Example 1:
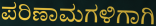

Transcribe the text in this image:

ಪರಿಣಾಮಗಳಿಗಾಗಿ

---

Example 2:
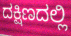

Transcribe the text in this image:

ದಕ್ಷಿಣದಲ್ಲಿ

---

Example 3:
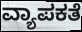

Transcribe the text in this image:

ವ್ಯಾಪಕತೆ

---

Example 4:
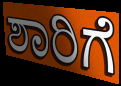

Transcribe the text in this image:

ಶಾರಿಗೆ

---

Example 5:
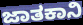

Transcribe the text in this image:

ಜಾತಕಾನಿ